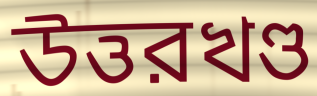
উত্তরখণ্ড